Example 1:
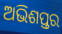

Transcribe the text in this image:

ଅଭିଶପ୍ତର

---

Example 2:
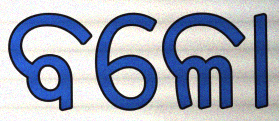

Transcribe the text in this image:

ବଳୋ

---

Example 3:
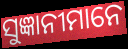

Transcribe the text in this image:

ସୁଜ୍ଞାନୀମାନେ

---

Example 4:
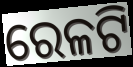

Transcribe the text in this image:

ରେଳଟି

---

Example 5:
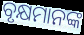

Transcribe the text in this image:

ବୃକ୍ଷମାନଙ୍କ